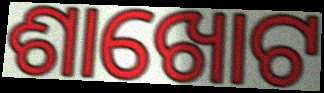
ଶାଖୋଟ